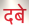
दबे